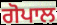
ਗੋਪਾਲ